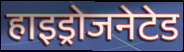
हाइड्रोजनेटेड